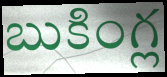
బుకింగ్ల